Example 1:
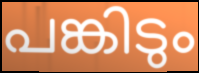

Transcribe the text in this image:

പങ്കിടും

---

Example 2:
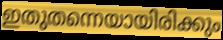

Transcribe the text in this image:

ഇതുതന്നെയായിരിക്കും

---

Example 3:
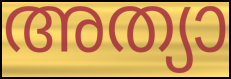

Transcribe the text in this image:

അത്യാ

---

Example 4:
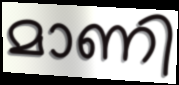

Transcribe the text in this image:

മാണി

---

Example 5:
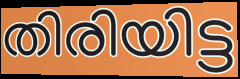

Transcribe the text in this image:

തിരിയിട്ട